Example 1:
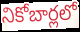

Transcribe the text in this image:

నికోబార్లలో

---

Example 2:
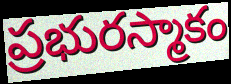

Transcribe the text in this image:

ప్రభురస్మాకం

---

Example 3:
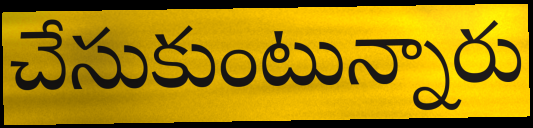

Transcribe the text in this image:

చేసుకుంటున్నారు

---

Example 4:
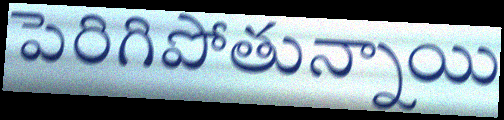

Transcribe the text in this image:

పెరిగిపోతున్నాయి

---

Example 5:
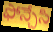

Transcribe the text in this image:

ఫోన్చేసి